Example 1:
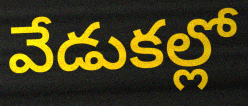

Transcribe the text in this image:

వేడుకల్లో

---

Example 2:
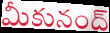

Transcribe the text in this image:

మీకునంద్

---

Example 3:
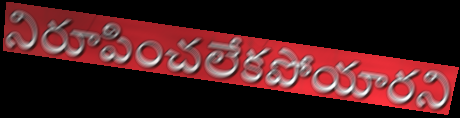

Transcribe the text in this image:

నిరూపించలేకపోయారని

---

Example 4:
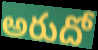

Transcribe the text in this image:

అరుదో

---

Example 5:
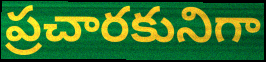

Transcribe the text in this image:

ప్రచారకునిగా